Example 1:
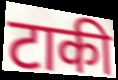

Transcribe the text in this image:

टाकी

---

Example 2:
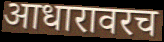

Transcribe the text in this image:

आधारावरच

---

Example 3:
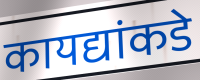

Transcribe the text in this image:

कायद्यांकडे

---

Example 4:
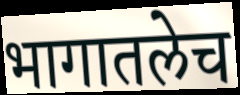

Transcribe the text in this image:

भागातलेच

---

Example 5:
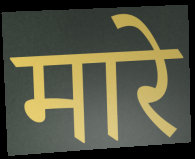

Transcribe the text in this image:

मारे